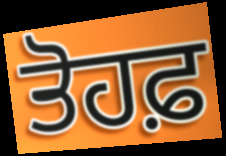
ਤੋਹਫ਼